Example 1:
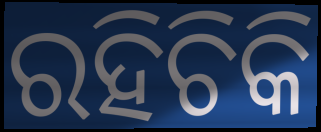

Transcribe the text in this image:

ରହିଚିକି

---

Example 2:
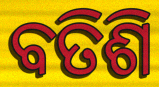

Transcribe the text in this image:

ବତିଶି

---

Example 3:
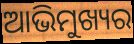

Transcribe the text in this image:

ଆଭିମୁଖ୍ୟର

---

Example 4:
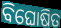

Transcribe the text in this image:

ବିଘୋଷିତ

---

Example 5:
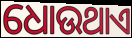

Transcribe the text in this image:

ଧୋଉଥାଏ